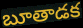
బూతాడక